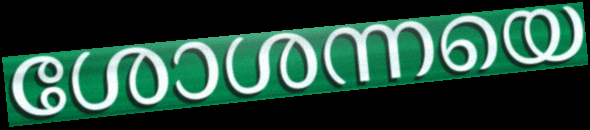
ശോശന്നയെ